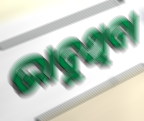
ଭାବୁଥିବା